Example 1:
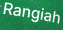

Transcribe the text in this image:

Rangiah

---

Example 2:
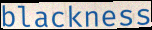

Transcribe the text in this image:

blackness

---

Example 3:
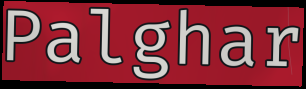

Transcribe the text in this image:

Palghar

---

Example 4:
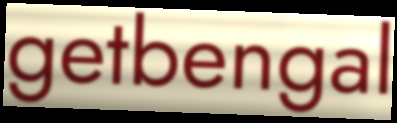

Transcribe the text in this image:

getbengal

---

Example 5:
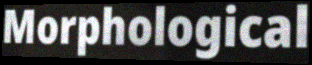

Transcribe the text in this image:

Morphological